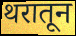
थरातून